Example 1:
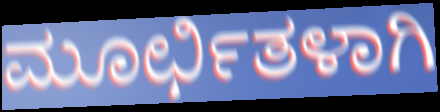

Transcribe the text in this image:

ಮೂರ್ಛಿತಳಾಗಿ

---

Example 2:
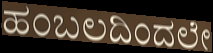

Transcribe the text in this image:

ಹಂಬಲದಿಂದಲೇ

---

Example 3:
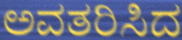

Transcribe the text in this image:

ಅವತರಿಸಿದ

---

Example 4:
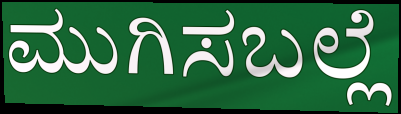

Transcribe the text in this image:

ಮುಗಿಸಬಲ್ಲೆ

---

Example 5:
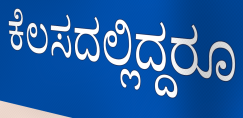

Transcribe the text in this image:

ಕೆಲಸದಲ್ಲಿದ್ದರೂ